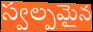
స్వల్పమైన